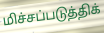
மிச்சப்படுத்திக்